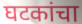
घटकांचा